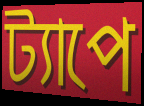
ট্যাপে